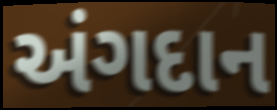
અંગદાન